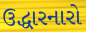
ઉદ્ધારનારો